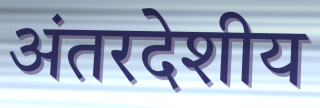
अंतरदेशीय